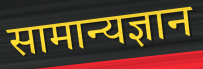
सामान्यज्ञान